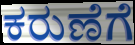
ಕರುಣೆಗೆ